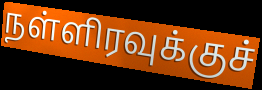
நள்ளிரவுக்குச்